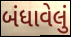
બંધાવેલું